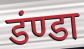
डंण्डा